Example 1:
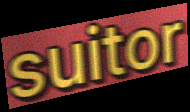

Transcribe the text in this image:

suitor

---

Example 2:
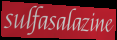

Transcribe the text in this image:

sulfasalazine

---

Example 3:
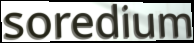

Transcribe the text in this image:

soredium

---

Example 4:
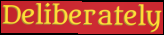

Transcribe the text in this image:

Deliberately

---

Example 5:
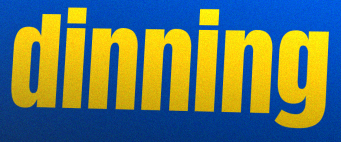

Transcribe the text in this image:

dinning